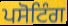
ਪਸੋਟਿੰਗ